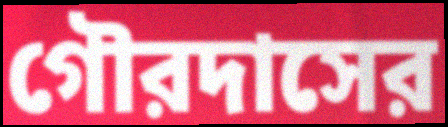
গৌরদাসের